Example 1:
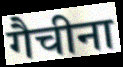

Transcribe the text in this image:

गैचीना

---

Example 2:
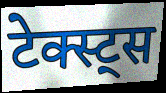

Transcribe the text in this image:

टेक्स्ट्स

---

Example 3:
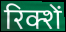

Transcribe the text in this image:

रिक्शें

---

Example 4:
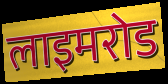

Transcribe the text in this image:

लाइमरोड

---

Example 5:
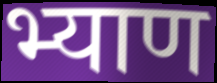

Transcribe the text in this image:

भ्याण